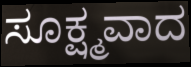
ಸೂಕ್ಷ್ಮವಾದ